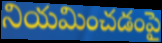
నియమించడంపై